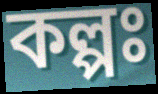
কল্পঃ